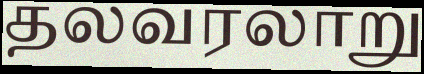
தலவரலாறு